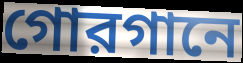
গোরগানে